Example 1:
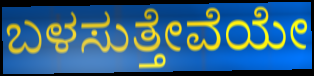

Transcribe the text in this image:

ಬಳಸುತ್ತೇವೆಯೇ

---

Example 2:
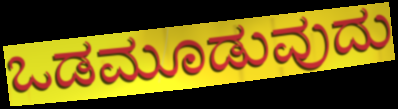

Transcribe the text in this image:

ಒಡಮೂಡುವುದು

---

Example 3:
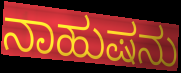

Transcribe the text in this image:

ನಾಹುಷನು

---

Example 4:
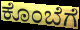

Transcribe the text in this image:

ಕೊಂಬೆಗೆ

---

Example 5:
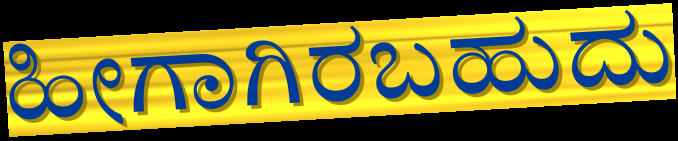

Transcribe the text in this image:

ಹೀಗಾಗಿರಬಹುದು